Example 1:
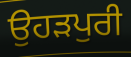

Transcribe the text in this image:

ਉਹੜਪੁਰੀ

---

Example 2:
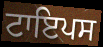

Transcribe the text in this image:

ਟਾਇਪਸ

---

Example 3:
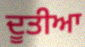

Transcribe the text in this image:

ਦੂਤੀਆ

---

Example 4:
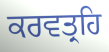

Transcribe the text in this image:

ਕਰਵਤ੍ਰਹਿ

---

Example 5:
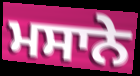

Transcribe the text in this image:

ਮਸਾਨੇ